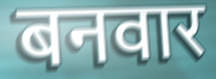
बनवार